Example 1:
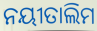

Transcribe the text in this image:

ନୟୀତାଲିମ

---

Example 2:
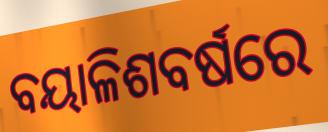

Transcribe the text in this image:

ବୟାଳିଶବର୍ଷରେ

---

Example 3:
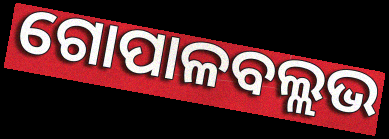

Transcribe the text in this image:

ଗୋପାଳବଲ୍ଲଭ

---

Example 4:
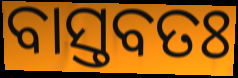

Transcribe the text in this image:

ବାସ୍ତବତଃ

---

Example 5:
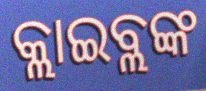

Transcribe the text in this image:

କ୍ଲାଇବ୍ଲଙ୍କ